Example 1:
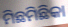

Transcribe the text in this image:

ମିଛମିଛିକା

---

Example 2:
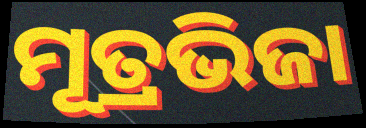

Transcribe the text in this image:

ମୂତ୍ରଭିଜା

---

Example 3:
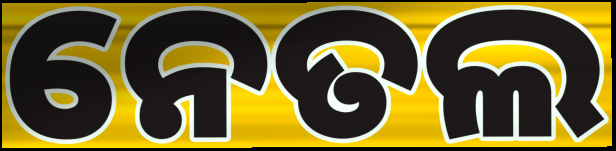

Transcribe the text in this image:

ନେତଲ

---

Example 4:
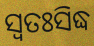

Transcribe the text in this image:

ସ୍ବତଃସିଦ୍ଧ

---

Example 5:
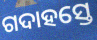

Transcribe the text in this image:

ଗଦାହସ୍ତେ